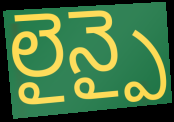
లైన్పై